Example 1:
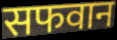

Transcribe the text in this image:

सफवान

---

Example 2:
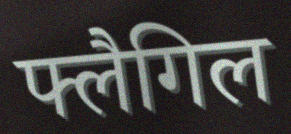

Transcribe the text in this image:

फ्लैगिल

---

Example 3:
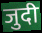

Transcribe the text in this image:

जुदी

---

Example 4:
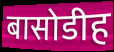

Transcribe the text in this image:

बासोडीह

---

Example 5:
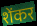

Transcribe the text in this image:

शेंकर